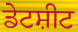
ਡੇਟਸ਼ੀਟ